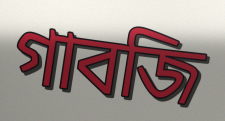
গাবজি